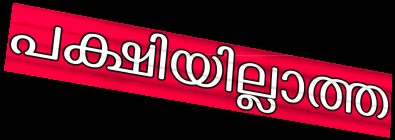
പക്ഷിയില്ലാത്ത